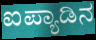
ಐಪ್ಯಾಡಿನ